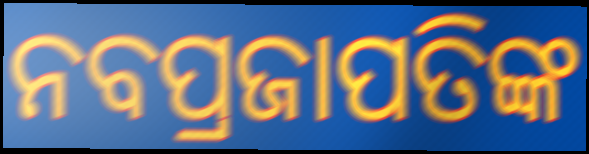
ନବପ୍ରଜାପତିଙ୍କ